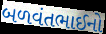
બળવંતભાઈનો